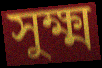
সুক্ষ্ম